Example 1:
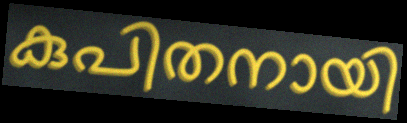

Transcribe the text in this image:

കുപിതനായി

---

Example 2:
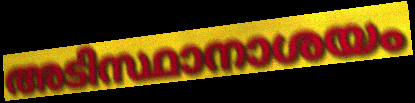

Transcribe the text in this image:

അടിസ്ഥാനാശയം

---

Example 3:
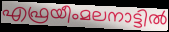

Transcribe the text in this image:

എഫ്രയീംമലനാട്ടിൽ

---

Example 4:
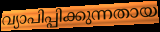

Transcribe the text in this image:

വ്യാപിപ്പിക്കുന്നതായ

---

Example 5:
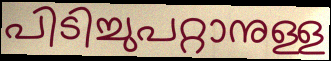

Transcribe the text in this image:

പിടിച്ചുപറ്റാനുള്ള